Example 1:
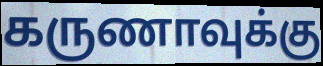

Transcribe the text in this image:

கருணாவுக்கு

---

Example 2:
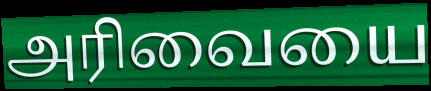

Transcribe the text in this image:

அரிவையை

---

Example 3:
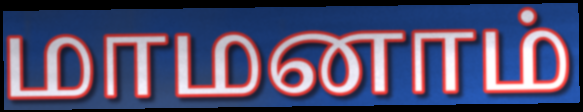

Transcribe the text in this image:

மாமனாம்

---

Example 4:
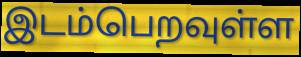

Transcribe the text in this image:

இடம்பெறவுள்ள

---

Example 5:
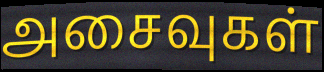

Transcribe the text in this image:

அசைவுகள்